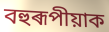
বহুৰূপীয়াক